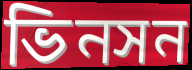
ভিনসন